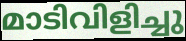
മാടിവിളിച്ചു